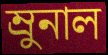
ম্রুনাল